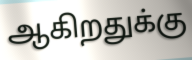
ஆகிறதுக்கு